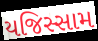
યજિસ્સામ